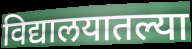
विद्यालयातल्या